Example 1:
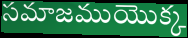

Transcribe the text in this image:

సమాజముయొక్క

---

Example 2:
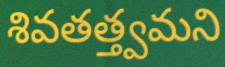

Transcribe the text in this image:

శివతత్త్వమని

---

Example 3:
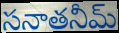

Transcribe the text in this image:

సనాతనీమ్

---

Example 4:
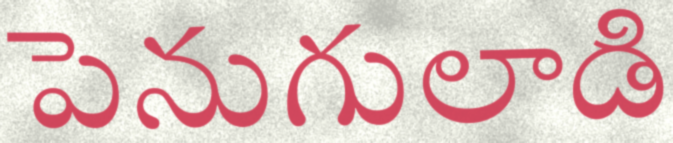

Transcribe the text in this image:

పెనుగులాడి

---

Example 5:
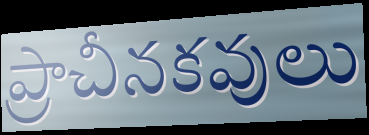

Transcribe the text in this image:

ప్రాచీనకవులు